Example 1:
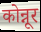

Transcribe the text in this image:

कोन्नूर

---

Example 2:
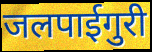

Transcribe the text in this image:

जलपाईगुरी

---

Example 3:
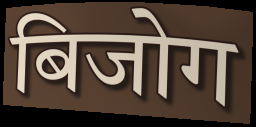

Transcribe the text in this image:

बिजोग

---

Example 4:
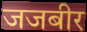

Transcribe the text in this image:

जजबीर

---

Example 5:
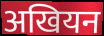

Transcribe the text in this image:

अखियन